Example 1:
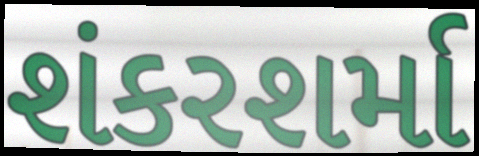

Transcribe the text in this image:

શંકરશર્મા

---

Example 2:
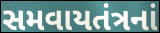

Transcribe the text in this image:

સમવાયતંત્રનાં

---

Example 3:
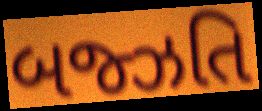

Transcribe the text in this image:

બજ્ઝતિ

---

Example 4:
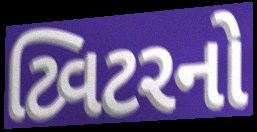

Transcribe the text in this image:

ટ્વિટરનો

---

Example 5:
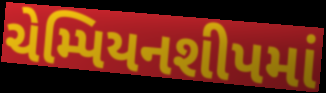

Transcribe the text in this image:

ચેમ્પિયનશીપમાં